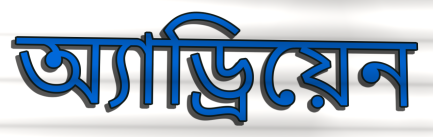
অ্যাড্রিয়েন